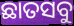
ଛାତସବୁ